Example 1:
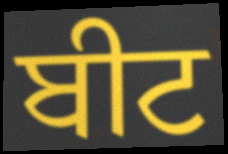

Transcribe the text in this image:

ਬੀਟ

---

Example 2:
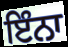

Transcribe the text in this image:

ਇੰਨਾ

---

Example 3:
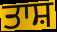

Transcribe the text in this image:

ਤਾਸ਼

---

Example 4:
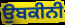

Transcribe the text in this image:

ਉਬਕੀਨੀ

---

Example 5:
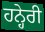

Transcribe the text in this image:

ਹਨ੍ਹੇਰੀ